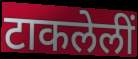
टाकलेलीं